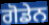
ਗੋਡੇਨ